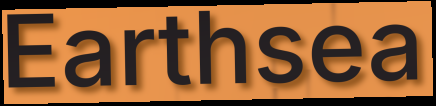
Earthsea